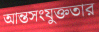
আন্তসংযুক্ততার